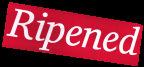
Ripened